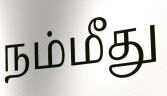
நம்மீது